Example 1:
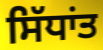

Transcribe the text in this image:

ਸਿੱਧਾਂਤ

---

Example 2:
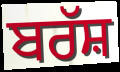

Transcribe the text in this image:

ਬਰੱਸ਼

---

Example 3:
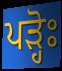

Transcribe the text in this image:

ਪੜ੍ਹੋਃ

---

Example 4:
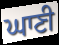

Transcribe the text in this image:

ਘਾਣੀ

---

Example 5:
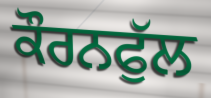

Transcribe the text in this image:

ਕੌਰਨਫੁੱਲ